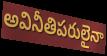
అవినీతిపరులైనా